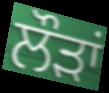
ਲੌੜਾਂ